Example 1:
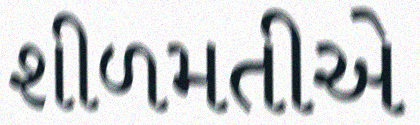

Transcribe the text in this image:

શીળમતીએ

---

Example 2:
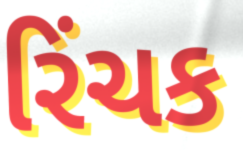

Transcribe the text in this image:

રિંચક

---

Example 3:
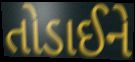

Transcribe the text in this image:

તોડાઈને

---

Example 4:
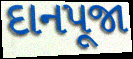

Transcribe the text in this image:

દાનપૂજા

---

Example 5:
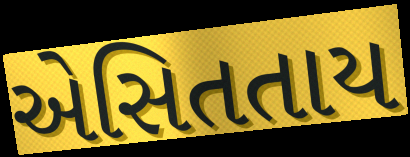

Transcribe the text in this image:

એસિતતાય